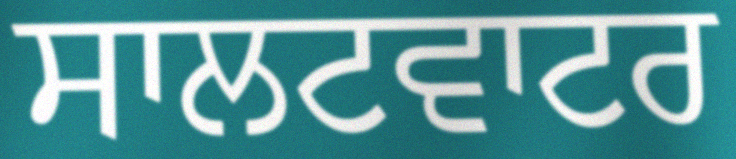
ਸਾਲਟਵਾਟਰ